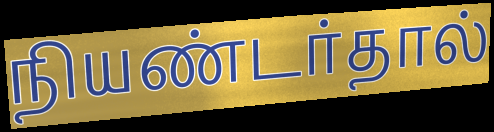
நியண்டர்தால்